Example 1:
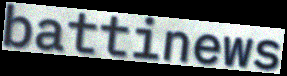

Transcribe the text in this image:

battinews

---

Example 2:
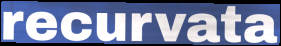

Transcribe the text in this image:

recurvata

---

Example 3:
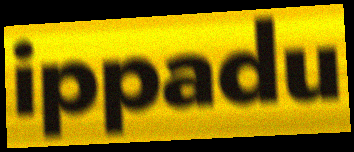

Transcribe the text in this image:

ippadu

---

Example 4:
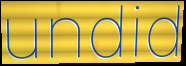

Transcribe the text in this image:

undid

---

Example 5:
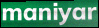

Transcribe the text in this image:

maniyar